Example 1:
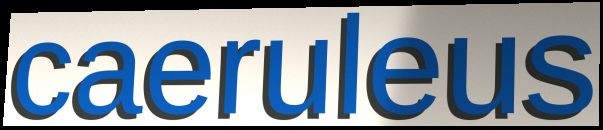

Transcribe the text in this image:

caeruleus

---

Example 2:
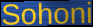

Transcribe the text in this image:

Sohoni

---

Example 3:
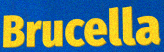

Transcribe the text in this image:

Brucella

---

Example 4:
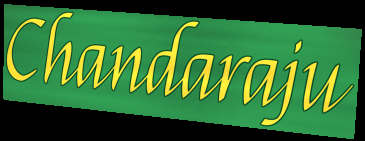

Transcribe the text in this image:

Chandaraju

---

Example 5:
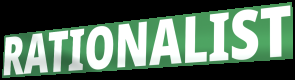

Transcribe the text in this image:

RATIONALIST